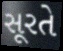
સૂરતે